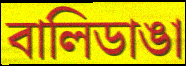
বালিডাঙা